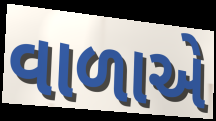
વાળાએ